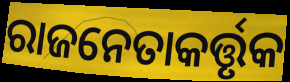
ରାଜନେତାକର୍ତ୍ତୃକ